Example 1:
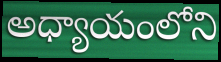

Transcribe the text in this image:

అధ్యాయంలోని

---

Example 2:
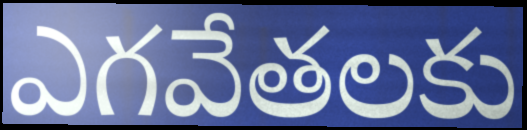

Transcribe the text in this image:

ఎగవేతలకు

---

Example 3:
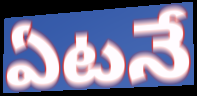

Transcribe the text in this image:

ఏటనే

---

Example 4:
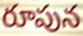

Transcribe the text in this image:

రూపున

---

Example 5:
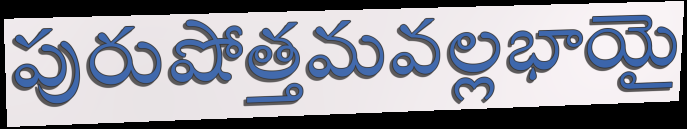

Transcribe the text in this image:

పురుషోత్తమవల్లభాయై